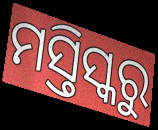
ମସ୍ତିସ୍କରୁ